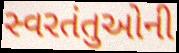
સ્વરતંતુઓની